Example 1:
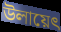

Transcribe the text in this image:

উলায়েৎ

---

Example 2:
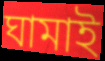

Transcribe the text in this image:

ঘামাই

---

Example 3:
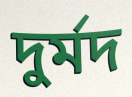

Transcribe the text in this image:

দুর্মদ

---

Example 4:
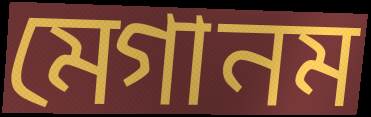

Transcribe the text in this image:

মেগানম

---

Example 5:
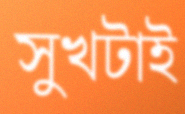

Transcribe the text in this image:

সুখটাই